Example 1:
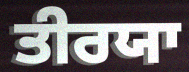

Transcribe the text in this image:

ਤੀਰਯਾ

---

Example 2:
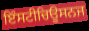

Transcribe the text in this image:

ਇੰਸਟੀਚਿਊਸਨਜ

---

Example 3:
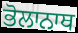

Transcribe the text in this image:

ਭੋਲਾਨਾਥ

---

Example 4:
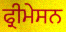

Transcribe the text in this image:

ਫ੍ਰੀਮੇਸਨ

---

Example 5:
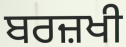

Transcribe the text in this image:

ਬਰਜ਼ਖੀ